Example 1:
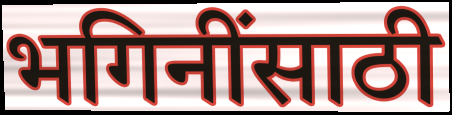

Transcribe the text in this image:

भगिनींसाठी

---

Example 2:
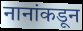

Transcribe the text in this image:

नानांकडून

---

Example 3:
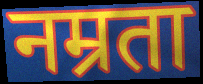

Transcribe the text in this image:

नम्रता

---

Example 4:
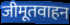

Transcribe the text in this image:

जीमूतवाहन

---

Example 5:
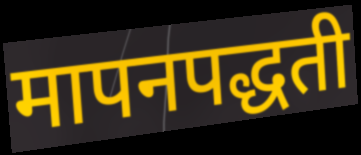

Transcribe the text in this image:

मापनपद्धती